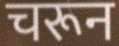
चरून